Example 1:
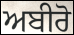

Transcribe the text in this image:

ਅਬੀਰੋ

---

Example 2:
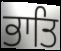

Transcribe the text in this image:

ਭਾਤਿ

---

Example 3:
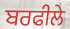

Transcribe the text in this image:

ਬਰਫੀਲੇ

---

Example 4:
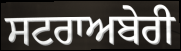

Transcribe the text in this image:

ਸਟਰਾਅਬੇਰੀ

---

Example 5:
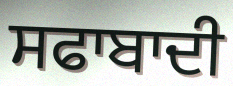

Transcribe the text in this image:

ਸਫਾਬਾਦੀ